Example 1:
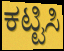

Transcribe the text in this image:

ಕಟ್ಟಿಸಿ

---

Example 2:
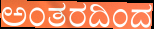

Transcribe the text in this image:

ಅಂತರದಿಂದ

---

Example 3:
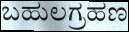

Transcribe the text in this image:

ಬಹುಲಗ್ರಹಣ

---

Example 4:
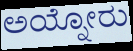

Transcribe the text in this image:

ಅಯ್ನೋರು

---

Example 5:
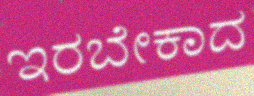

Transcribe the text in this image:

ಇರಬೇಕಾದ